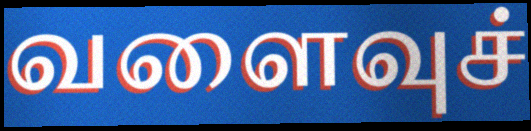
வளைவுச்